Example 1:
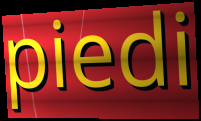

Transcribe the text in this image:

piedi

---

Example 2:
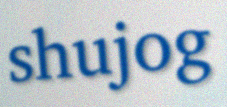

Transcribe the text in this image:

shujog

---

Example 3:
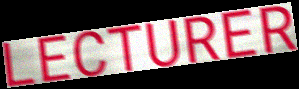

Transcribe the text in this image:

LECTURER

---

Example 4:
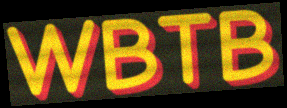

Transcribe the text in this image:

WBTB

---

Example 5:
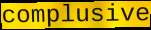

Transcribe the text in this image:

complusive